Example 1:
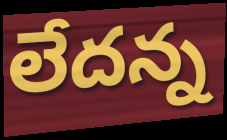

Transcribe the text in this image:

లేదన్న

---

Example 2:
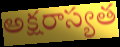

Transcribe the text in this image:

అక్షరాస్యత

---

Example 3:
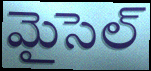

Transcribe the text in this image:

మైసెల్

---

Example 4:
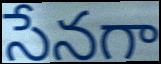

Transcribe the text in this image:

సేనగా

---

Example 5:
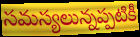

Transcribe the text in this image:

సమస్యలున్నప్పటికీ